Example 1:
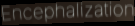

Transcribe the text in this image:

Encephalization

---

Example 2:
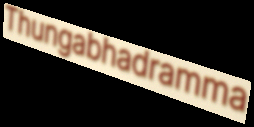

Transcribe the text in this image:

Thungabhadramma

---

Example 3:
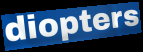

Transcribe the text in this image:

diopters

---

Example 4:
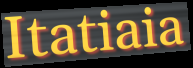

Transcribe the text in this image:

Itatiaia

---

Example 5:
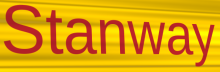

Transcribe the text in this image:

Stanway